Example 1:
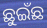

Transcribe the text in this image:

ଛୁଇଁଛ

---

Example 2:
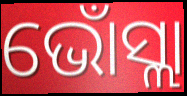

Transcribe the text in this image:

ଭୋଁସ୍ଲା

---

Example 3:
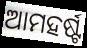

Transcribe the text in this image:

ଆମହର୍ଷ୍ଟ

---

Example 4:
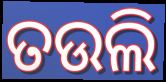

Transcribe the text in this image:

ତଉଲି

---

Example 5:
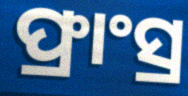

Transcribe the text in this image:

ଫ୍ରାଂସ୍ର